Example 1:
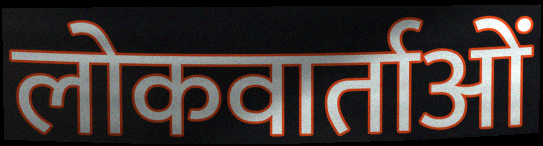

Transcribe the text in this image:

लोकवार्ताओं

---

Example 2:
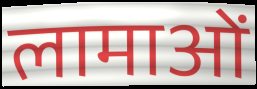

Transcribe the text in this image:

लामाओं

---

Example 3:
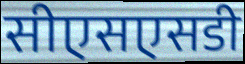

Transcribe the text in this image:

सीएसएसडी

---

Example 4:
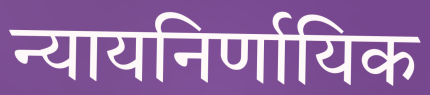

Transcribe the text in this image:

न्यायनिर्णायिक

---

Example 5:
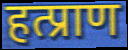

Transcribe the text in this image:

हत्प्राण